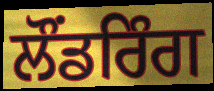
ਲੌਂਡਰਿੰਗ